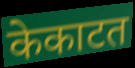
केकाटत